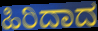
ಹಿರಿದಾದ